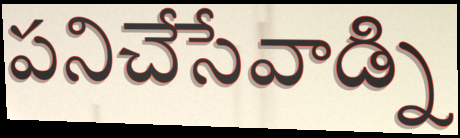
పనిచేసేవాడ్ని